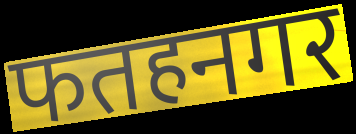
फतहनगर